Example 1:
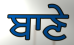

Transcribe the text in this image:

ਬਾਣੇ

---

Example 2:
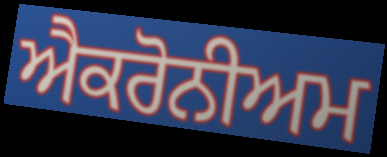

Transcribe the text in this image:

ਐਕਰੋਨੀਅਮ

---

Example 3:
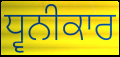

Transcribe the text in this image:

ਧ੍ਵਨੀਕਾਰ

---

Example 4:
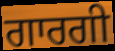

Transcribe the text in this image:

ਗਾਰਗੀ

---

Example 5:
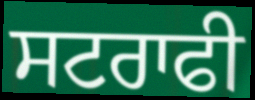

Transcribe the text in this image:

ਸਟਰਾਫੀ